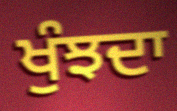
ਖੁੰਝਦਾ